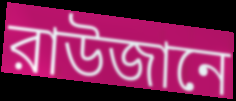
রাউজানে